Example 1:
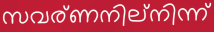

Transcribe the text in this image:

സവര്ണനില്നിന്ന്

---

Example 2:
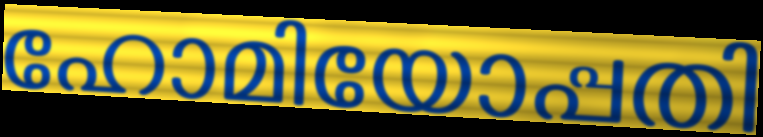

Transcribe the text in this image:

ഹോമിയോപ്പതി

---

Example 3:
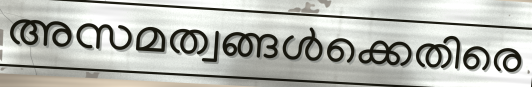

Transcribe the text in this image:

അസമത്വങ്ങൾക്കെതിരെ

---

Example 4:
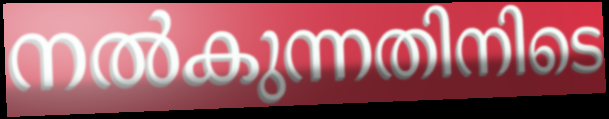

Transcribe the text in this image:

നൽകുന്നതിനിടെ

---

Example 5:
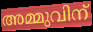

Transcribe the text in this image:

അമ്മുവിന്